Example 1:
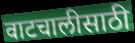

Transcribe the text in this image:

वाटचालीसाठी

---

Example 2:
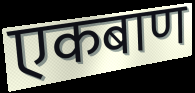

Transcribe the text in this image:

एकबाण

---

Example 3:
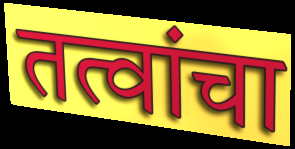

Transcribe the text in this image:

तत्वांचा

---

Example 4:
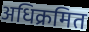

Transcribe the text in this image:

अधिक्रमित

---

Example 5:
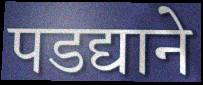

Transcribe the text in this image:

पडद्याने